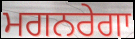
ਮਗਨਰੇਗਾ